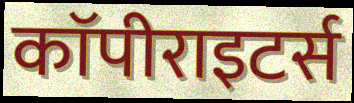
कॉपीराइटर्स